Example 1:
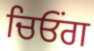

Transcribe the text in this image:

ਚਿਓਂਗ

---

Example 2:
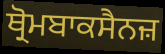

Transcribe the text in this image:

ਥ੍ਰੋਮਬਾਕਸੈਨਜ਼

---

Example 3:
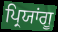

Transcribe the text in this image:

ਪ੍ਰਿਯਾਂਗੂ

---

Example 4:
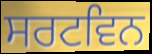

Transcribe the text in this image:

ਸਰਟਵਿਨ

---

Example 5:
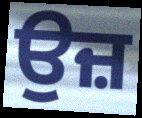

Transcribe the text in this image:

ਉਜ਼